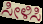
ಸೀಳಿಸಿ